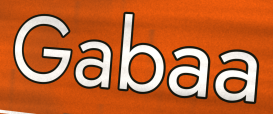
Gabaa